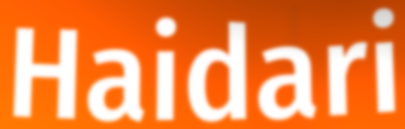
Haidari